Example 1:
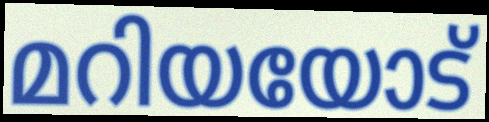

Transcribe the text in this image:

മറിയയോട്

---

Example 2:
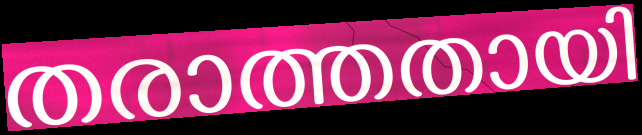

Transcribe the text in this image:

തരാത്തതായി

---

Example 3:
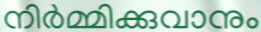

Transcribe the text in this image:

നിർമ്മിക്കുവാനും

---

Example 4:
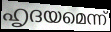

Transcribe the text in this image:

ഹൃദയമെന്ന്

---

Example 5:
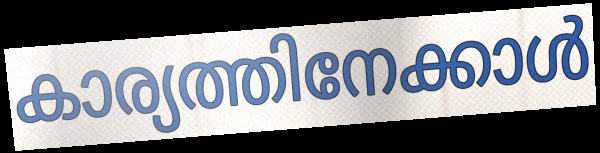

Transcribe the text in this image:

കാര്യത്തിനേക്കാൾ